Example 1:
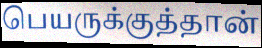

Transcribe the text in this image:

பெயருக்குத்தான்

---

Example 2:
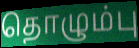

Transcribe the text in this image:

தொழும்பு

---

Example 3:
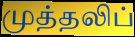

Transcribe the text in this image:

முத்தலிப்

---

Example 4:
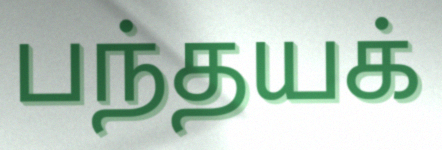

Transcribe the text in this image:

பந்தயக்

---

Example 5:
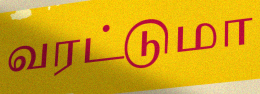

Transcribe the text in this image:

வரட்டுமா